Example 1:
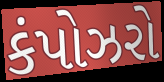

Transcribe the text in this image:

કંપોઝરો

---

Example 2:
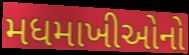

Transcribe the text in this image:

મધમાખીઓનો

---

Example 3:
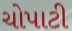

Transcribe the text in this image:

ચોપાટી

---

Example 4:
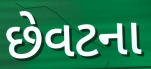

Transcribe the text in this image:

છેવટના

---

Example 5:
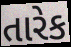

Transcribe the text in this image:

તારેક